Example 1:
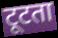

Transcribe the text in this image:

टूटता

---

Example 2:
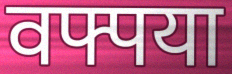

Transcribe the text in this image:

वफ्पया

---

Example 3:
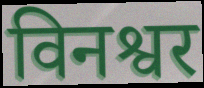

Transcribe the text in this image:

विनश्वर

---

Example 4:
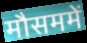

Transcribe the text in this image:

मौसममें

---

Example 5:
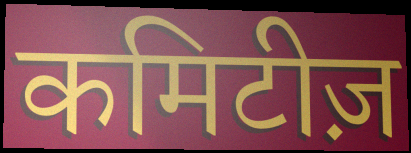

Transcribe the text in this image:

कमिटीज़